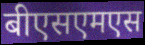
बीएसएमएस